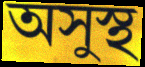
অসুস্থ